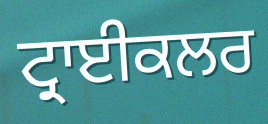
ਟ੍ਰਾਈਕਲਰ